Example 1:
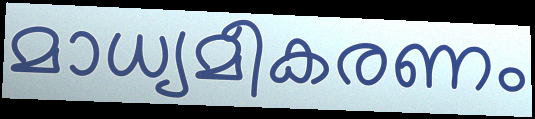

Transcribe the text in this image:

മാധ്യമീകരണം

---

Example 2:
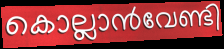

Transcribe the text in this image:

കൊല്ലാൻവേണ്ടി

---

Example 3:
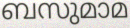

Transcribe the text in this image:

ബസുമാമ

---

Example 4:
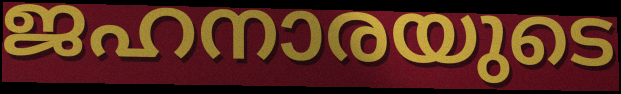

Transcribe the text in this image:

ജഹനാരയുടെ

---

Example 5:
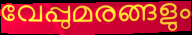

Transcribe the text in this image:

വേപ്പുമരങ്ങളും